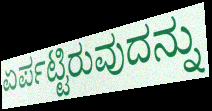
ಏರ್ಪಟ್ಟಿರುವುದನ್ನು